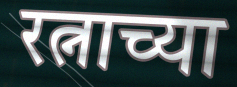
रत्नाच्या